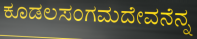
ಕೂಡಲಸಂಗಮದೇವನೆನ್ನ